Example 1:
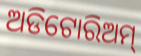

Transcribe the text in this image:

ଅଡିଟୋରିଅମ୍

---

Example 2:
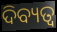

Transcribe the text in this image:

ଦିବ୍ୟତ୍ବ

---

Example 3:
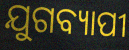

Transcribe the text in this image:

ଯୁଗବ୍ୟାପୀ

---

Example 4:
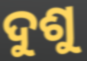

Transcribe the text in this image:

ଦୁଶୁ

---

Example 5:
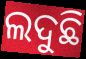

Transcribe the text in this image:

ଲଦୁଛି